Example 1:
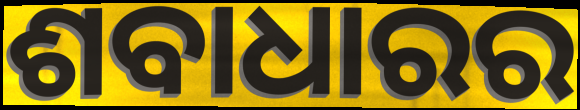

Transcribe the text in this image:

ଶବାଧାରର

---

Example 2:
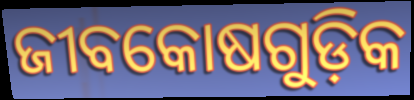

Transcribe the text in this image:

ଜୀବକୋଷଗୁଡ଼ିକ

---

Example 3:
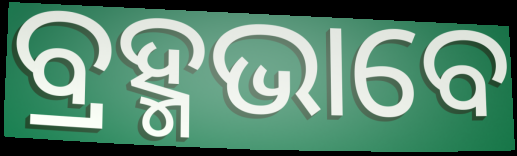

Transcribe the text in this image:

ବ୍ରହ୍ମଭାବେ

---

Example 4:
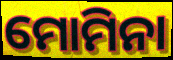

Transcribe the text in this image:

ମୋମିନା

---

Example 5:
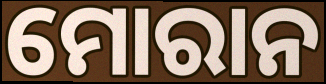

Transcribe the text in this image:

ମୋରାନ